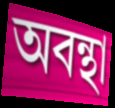
অবন্থা